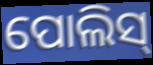
ପୋଲିସ୍